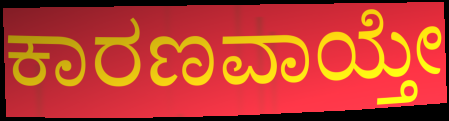
ಕಾರಣವಾಯ್ತೇ